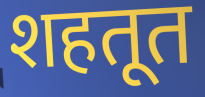
शहतूत